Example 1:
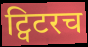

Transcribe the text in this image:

ट्विटरच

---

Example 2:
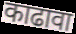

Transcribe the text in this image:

काढावा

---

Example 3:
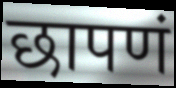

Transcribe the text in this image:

छापणं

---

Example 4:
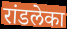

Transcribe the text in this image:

रांडलेका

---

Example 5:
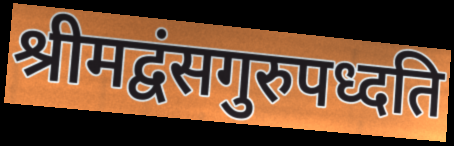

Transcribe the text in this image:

श्रीमद्वंसगुरुपध्दति